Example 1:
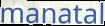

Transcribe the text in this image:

manatal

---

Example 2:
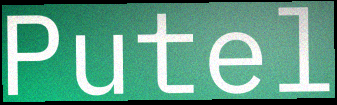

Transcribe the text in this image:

Putel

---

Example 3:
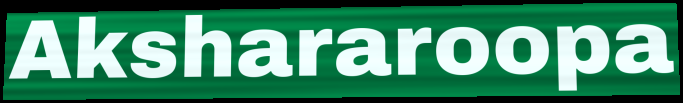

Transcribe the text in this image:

Akshararoopa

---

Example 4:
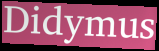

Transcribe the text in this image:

Didymus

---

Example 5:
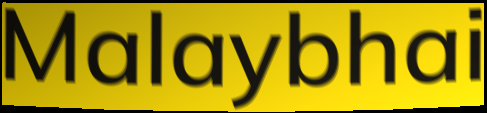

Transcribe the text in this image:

Malaybhai